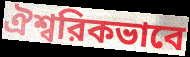
ঐশ্বরিকভাবে